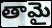
తామై